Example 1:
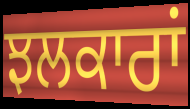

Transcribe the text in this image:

ਝਲਕਾਰਾਂ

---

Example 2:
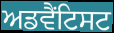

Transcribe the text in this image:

ਅਡਵੈਂਟਿਸਟ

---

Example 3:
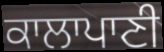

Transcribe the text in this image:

ਕਾਲਾਪਾਣੀ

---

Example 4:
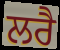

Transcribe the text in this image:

ਲਰੈ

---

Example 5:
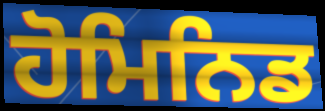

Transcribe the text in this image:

ਹੋਮਿਨਿਡ